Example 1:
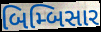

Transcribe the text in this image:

બિમ્બિસાર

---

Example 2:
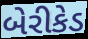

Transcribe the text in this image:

બેરીકેડ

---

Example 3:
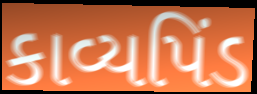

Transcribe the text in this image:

કાવ્યપિંડ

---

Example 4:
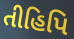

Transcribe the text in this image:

તીહિપિ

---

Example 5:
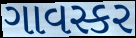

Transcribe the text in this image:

ગાવસ્કર